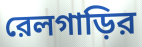
রেলগাড়ির